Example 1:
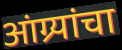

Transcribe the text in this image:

आंग्र्यांचा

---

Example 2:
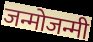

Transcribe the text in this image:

जन्मोजन्मी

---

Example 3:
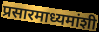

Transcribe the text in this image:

प्रसारमाध्यमांशी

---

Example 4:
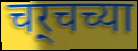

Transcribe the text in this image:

चर्चच्या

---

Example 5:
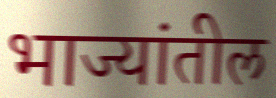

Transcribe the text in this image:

भाज्यांतील